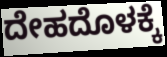
ದೇಹದೊಳಕ್ಕೆ